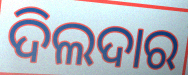
ଦିଲଦାର